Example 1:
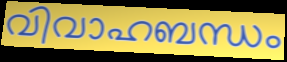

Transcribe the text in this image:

വിവാഹബന്ധം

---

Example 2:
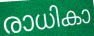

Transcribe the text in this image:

രാധികാ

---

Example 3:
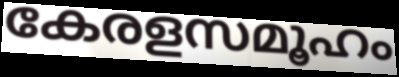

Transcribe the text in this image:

കേരളസമൂഹം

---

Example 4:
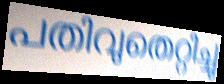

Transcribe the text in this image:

പതിവുതെറ്റിച്ചു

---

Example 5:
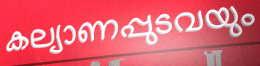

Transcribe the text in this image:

കല്യാണപ്പുടവയും